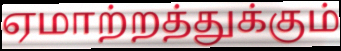
ஏமாற்றத்துக்கும்